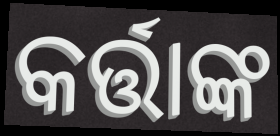
କର୍ତ୍ତାଙ୍କ